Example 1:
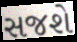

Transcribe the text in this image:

સજશે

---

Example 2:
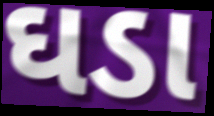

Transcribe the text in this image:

ઘડા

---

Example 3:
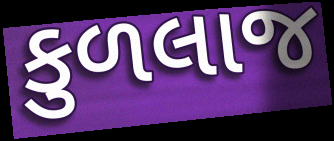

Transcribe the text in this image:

કુળલાજ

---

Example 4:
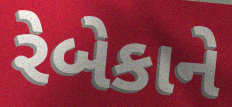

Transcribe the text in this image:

રેબેકાને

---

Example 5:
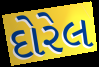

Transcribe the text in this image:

દોરેલ